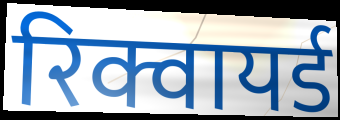
रिक्वायर्ड